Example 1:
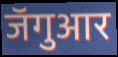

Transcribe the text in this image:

जॅगुआर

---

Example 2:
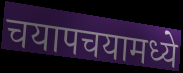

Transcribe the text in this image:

चयापचयामध्ये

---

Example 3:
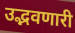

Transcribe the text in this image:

उद्भवणारी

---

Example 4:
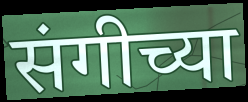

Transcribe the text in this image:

संगीच्या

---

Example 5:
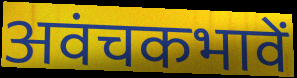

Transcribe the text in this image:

अवंचकभावें